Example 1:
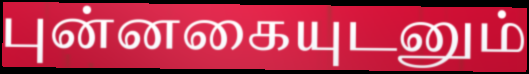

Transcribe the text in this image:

புன்னகையுடனும்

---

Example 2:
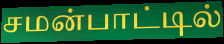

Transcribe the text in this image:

சமன்பாட்டில்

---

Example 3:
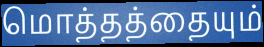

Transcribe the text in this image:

மொத்தத்தையும்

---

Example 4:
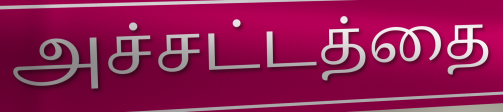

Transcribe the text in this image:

அச்சட்டத்தை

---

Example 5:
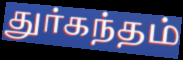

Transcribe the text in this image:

துர்கந்தம்